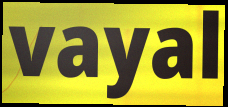
vayal